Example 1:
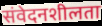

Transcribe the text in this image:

संवेदनशीलता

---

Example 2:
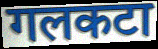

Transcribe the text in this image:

गलकटा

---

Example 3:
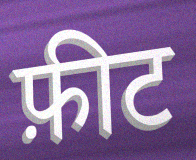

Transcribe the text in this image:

फ़ीट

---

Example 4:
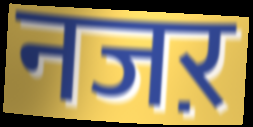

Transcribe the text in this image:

नजऱ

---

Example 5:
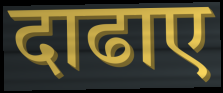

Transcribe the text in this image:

दाढाए